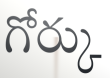
గోర్కు